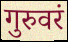
गुरुवरं